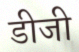
डीजी